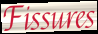
Fissures